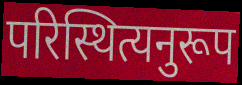
परिस्थित्यनुरूप